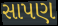
સાપણ